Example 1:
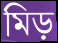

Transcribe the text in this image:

মিড়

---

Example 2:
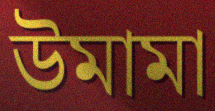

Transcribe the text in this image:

উমামা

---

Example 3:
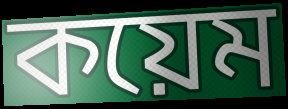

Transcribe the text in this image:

কয়েম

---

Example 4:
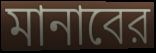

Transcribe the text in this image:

মানাবের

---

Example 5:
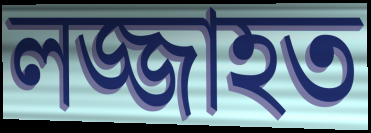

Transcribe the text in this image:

লজ্জাহত